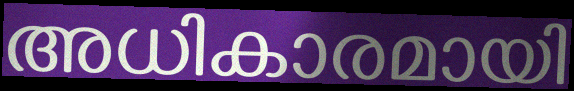
അധികാരമായി